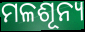
ମଳଶୂନ୍ୟ